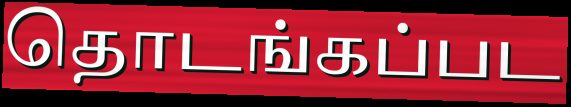
தொடங்கப்பட